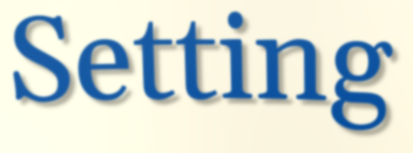
Setting